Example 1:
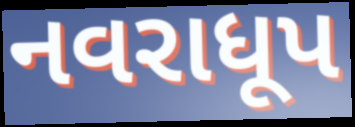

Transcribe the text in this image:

નવરાધૂપ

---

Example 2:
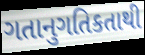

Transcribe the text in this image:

ગતાનુગતિકતાથી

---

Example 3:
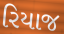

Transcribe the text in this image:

રિયાજ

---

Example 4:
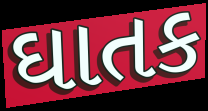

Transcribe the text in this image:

ઘાતક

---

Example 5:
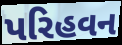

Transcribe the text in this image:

પરિહવન